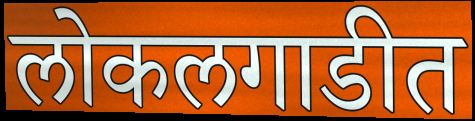
लोकलगाडीत